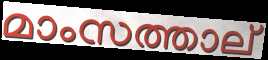
മാംസത്താല്